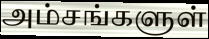
அம்சங்களுள்